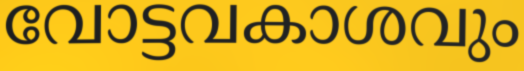
വോട്ടവകാശവും